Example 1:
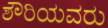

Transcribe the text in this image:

ಶೌರಿಯವರು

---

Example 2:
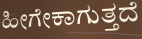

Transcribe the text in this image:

ಹೀಗೇಕಾಗುತ್ತದೆ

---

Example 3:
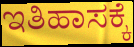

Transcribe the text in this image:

ಇತಿಹಾಸಕ್ಕೆ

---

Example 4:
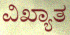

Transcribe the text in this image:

ವಿಖ್ಯಾತ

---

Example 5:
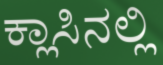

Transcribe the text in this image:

ಕ್ಲಾಸಿನಲ್ಲಿ